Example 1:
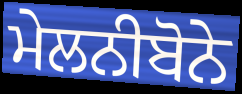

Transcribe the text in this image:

ਮੇਲਨੀਬੋਨੇ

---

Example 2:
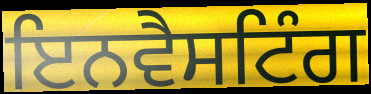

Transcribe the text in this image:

ਇਨਵੈਸਟਿੰਗ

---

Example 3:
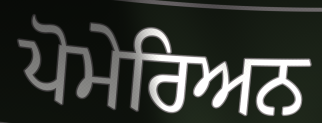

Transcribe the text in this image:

ਪੋਮੇਰਿਅਨ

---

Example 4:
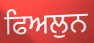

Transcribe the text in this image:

ਫਿਅਲੁਨ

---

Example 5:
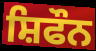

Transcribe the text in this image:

ਸ਼ਿਫੌਨ